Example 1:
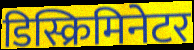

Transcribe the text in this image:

डिस्क्रिमिनेटर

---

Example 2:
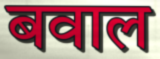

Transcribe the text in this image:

बवाल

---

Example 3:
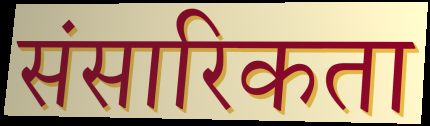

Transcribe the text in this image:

संसारिकता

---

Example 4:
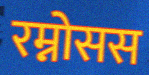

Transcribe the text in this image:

रम्नोसस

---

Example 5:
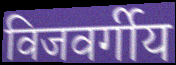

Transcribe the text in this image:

विजवर्गीय